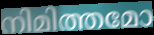
നിമിത്തമോ